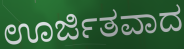
ಊರ್ಜಿತವಾದ